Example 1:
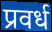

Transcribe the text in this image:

प्रवर्ध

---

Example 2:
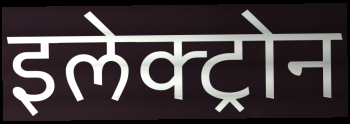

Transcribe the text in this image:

इलेक्ट्रोन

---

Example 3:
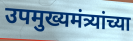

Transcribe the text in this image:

उपमुख्यमंत्र्यांच्या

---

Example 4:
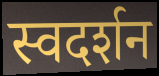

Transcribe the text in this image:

स्वदर्शन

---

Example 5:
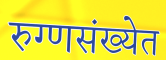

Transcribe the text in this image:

रुग्णसंख्येत